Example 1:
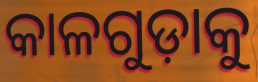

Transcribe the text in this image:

କାଳଗୁଡ଼ାକୁ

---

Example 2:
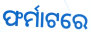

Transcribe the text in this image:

ଫର୍ମାଟରେ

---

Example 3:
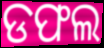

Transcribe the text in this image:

ଡଫଲ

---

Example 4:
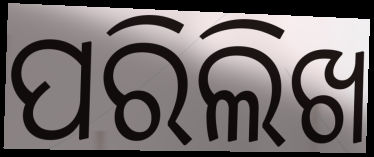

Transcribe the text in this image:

ପରିଲିଖ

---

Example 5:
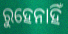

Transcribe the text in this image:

ରୁହେନାହିଁ